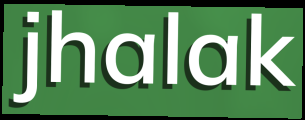
jhalak